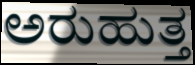
ಅರುಹುತ್ತ